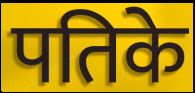
पतिके